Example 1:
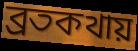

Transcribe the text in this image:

ব্রতকথায়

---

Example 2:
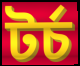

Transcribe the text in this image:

টর্চ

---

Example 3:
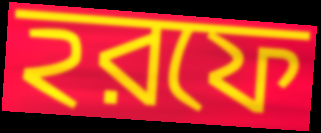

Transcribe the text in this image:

হরফে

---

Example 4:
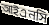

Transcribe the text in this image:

আইএনসি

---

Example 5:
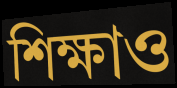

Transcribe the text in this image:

শিক্ষাও